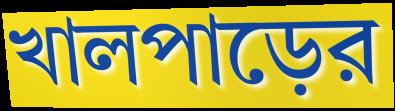
খালপাড়ের